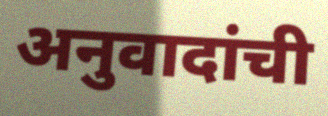
अनुवादांची